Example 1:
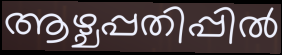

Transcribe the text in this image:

ആഴ്ചപ്പതിപ്പിൽ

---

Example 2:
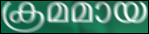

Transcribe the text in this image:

ക്രമമായ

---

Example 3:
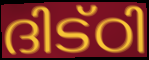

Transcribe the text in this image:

ദിട്ഠി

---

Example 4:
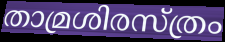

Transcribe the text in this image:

താമ്രശിരസ്ത്രം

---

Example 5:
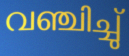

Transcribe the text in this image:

വഞ്ചിച്ചു്